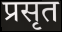
प्रसृत